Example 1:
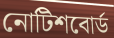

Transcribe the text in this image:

নোটিশবোর্ড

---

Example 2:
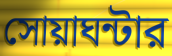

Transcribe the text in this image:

সোয়াঘন্টার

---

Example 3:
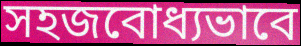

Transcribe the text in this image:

সহজবোধ্যভাবে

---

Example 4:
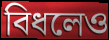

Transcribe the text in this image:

বিধলেও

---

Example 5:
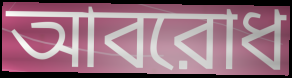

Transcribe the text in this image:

আবরোধ